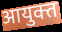
आयुक्‍त